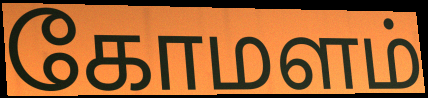
கோமளம்